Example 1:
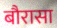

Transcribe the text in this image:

बौरासा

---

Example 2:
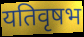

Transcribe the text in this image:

यतिवृषभ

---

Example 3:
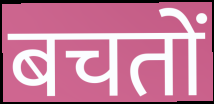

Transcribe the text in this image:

बचतों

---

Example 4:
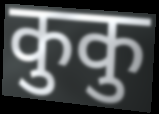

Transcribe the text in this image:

कुकु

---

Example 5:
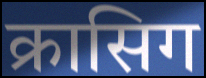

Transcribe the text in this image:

क्रासिग